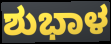
ಶುಭಾಳ